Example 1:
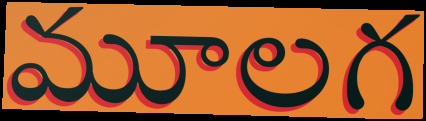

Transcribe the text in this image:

మూలగ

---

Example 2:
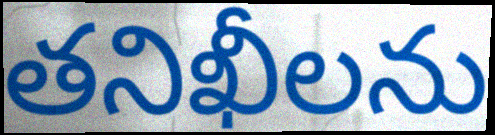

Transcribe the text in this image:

తనిఖీలను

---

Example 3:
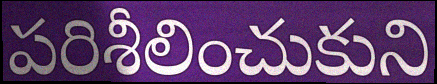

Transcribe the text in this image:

పరిశీలించుకుని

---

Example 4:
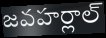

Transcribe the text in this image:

జవహర్లాల్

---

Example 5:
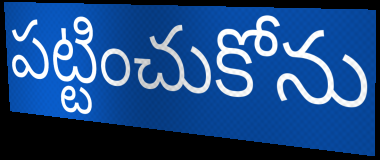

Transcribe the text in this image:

పట్టించుకోను